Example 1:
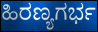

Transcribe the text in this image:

ಹಿರಣ್ಯಗರ್ಭ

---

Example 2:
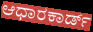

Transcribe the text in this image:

ಆಧಾರಕಾರ್ಡ್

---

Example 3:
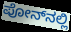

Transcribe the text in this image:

ಪೋನ್‍ನಲ್ಲಿ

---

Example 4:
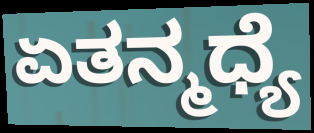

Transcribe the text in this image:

ಏತನ್ಮಧ್ಯೆ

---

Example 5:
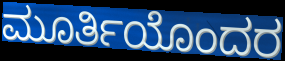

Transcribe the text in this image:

ಮೂರ್ತಿಯೊಂದರ